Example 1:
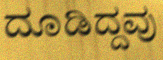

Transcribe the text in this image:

ದೂಡಿದ್ದವು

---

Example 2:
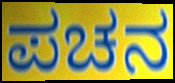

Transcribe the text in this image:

ಪಚನ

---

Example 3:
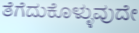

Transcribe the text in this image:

ತೆಗೆದುಕೊಳ್ಳುವುದೇ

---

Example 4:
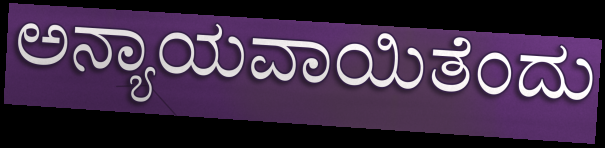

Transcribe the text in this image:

ಅನ್ಯಾಯವಾಯಿತೆಂದು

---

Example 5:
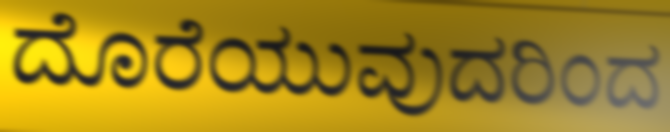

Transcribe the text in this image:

ದೊರೆಯುವುದರಿಂದ